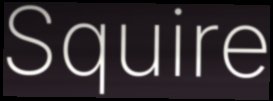
Squire